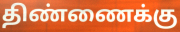
திண்ணைக்கு